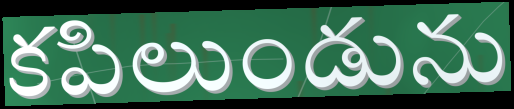
కపిలుండును